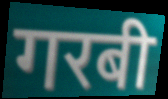
गरबी